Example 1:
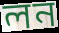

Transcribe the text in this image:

লন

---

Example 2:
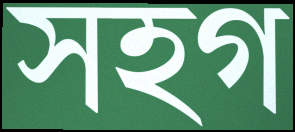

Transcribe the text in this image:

সহগ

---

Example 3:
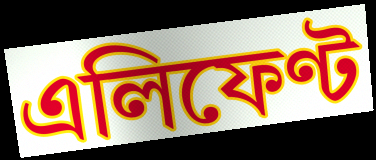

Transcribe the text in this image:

এলিফেণ্ট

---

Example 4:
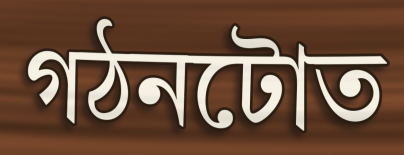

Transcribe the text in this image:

গঠনটোত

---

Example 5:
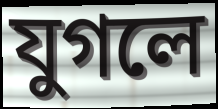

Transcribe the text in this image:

যুগলে